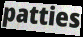
patties